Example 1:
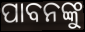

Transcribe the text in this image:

ପାବନଙ୍କୁ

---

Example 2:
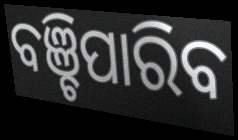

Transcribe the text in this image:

ବଞ୍ଚିପାରିବ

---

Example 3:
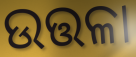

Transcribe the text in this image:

ଉତ୍ତଳା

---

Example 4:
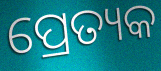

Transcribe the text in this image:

ପ୍ରେତ୍ୟକ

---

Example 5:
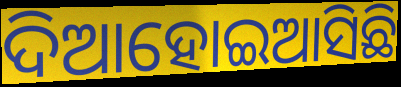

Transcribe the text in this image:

ଦିଆହୋଇଆସିଛି